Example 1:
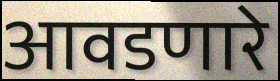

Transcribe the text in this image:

आवडणारे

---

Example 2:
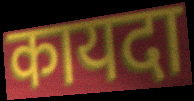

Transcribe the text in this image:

कायदा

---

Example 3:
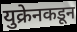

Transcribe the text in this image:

युक्रेनकडून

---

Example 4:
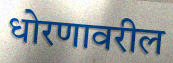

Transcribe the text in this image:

धोरणावरील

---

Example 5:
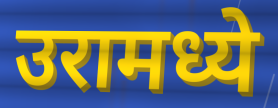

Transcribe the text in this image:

उरामध्ये